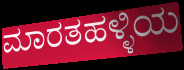
ಮಾರತಹಳ್ಳಿಯ